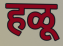
हळू